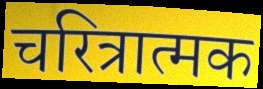
चरित्रात्मक